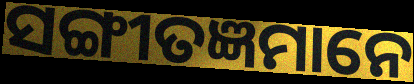
ସଙ୍ଗୀତଜ୍ଞମାନେ